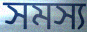
সমস্য